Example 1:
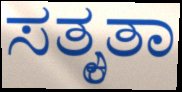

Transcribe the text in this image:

ಸತ್ಕೃತಾ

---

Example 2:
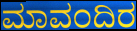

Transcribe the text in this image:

ಮಾವಂದಿರ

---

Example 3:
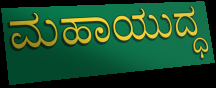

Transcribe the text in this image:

ಮಹಾಯುದ್ಧ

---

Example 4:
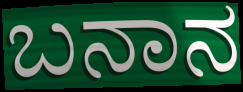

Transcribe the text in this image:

ಬನಾನ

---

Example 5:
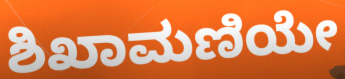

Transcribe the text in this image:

ಶಿಖಾಮಣಿಯೇ